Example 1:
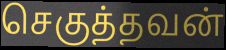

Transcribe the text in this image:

செகுத்தவன்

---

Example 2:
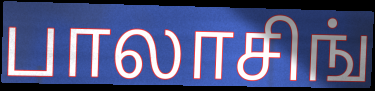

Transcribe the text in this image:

பாலாசிங்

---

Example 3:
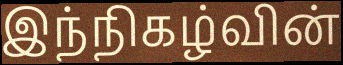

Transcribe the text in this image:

இந்நிகழ்வின்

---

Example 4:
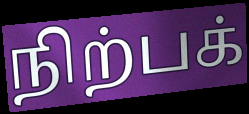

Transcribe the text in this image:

நிற்பக்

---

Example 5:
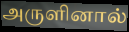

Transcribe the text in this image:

அருளினால்